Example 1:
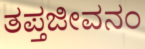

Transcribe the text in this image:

ತಪ್ತಜೀವನಂ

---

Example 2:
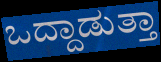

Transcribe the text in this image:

ಒದ್ದಾಡುತ್ತಾ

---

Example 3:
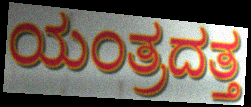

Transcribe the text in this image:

ಯಂತ್ರದತ್ತ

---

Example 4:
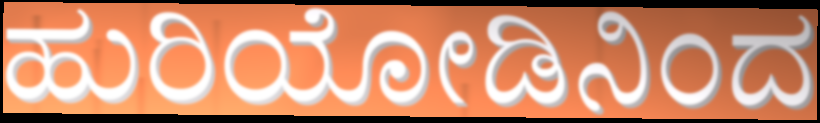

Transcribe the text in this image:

ಹುರಿಯೋಡಿನಿಂದ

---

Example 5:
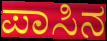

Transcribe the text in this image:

ಪಾಸಿನ